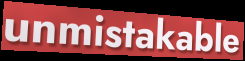
unmistakable